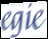
egie